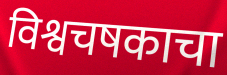
विश्वचषकाचा